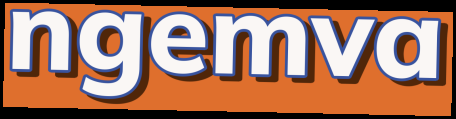
ngemva